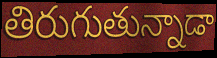
తిరుగుతున్నాడా